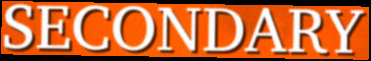
SECONDARY